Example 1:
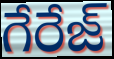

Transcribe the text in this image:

గేరేజ్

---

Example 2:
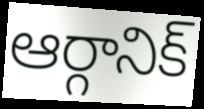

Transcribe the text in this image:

ఆర్గానిక్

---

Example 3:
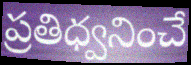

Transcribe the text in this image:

ప్రతిధ్వనించే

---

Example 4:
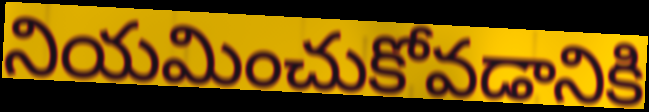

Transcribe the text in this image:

నియమించుకోవడానికి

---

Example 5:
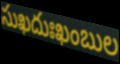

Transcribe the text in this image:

సుఖదుఃఖంబుల